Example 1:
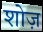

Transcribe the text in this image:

शोज़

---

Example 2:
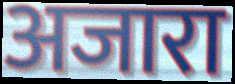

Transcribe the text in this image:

अजारा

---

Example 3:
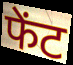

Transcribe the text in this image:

फेंट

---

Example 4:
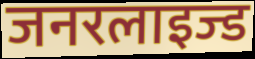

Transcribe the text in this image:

जनरलाइज्ड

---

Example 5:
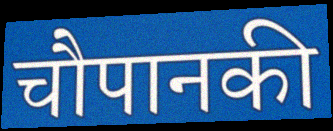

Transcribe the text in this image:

चौपानकी